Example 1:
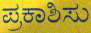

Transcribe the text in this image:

ಪ್ರಕಾಶಿಸು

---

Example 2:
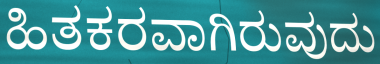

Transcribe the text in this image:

ಹಿತಕರವಾಗಿರುವುದು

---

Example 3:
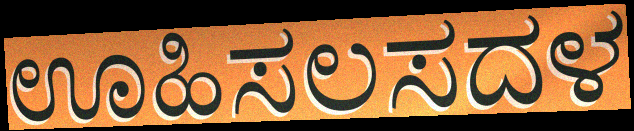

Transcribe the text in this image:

ಊಹಿಸಲಸದಳ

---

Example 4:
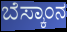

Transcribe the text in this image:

ಬೆಸ್ಕಾಂನ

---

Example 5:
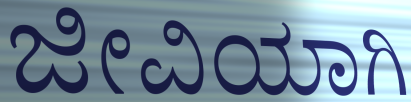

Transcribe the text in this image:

ಜೀವಿಯಾಗಿ